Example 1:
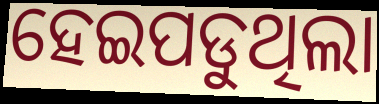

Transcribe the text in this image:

ହେଇପଡୁଥିଲା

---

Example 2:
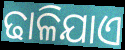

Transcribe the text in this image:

ଢାଳିଯାଏ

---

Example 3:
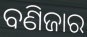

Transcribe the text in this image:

ବଣିଜାର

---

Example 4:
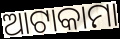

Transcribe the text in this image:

ଆଟାକାମା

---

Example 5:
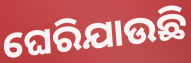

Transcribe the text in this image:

ଘେରିଯାଉଛି